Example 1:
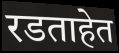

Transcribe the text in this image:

रडताहेत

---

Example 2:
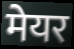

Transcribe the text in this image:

मेयर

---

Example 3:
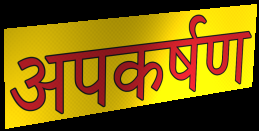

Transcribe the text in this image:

अपकर्षण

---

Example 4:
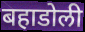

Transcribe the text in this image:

बहाडोली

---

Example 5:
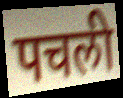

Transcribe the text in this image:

पचली